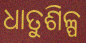
ଧାତୁଶିଳ୍ପ